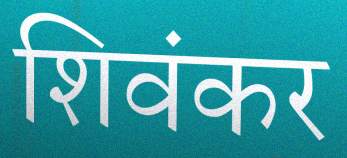
शिवंकर